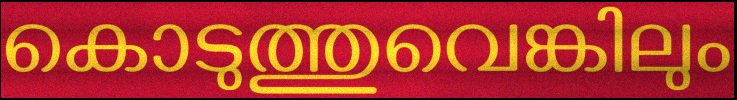
കൊടുത്തുവെങ്കിലും